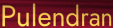
Pulendran